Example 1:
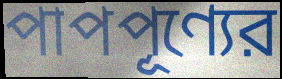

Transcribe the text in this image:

পাপপূণ্যের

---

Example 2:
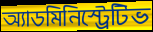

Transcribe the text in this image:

অ্যাডমিনিস্ট্রেটিভ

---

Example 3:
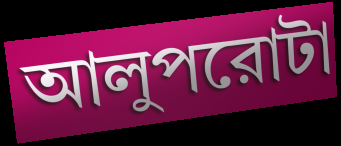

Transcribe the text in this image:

আলুপরোটা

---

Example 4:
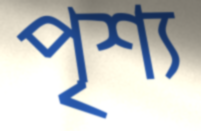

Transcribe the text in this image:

পৃশ্য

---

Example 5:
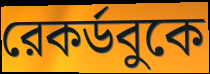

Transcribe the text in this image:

রেকর্ডবুকে